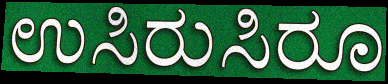
ಉಸಿರುಸಿರೂ